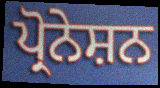
ਪ੍ਰੋਨੇਸ਼ਨ